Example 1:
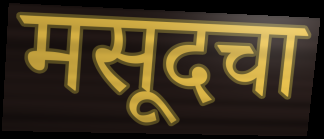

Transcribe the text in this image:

मसूदचा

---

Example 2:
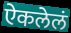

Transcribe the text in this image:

ऐकलेलं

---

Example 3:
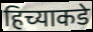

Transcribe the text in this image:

हिच्याकडे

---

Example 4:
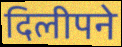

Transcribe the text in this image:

दिलीपने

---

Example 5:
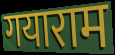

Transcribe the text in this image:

गयाराम